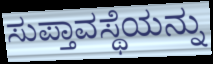
ಸುಪ್ತಾವಸ್ಥೆಯನ್ನು